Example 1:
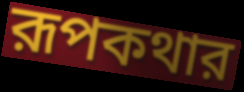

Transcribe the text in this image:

রূপকথার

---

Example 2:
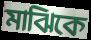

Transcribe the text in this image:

মাঝিকে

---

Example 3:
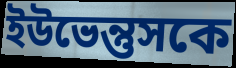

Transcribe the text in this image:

ইউভেন্তুসকে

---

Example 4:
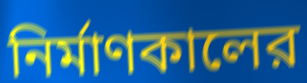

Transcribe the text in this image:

নির্মাণকালের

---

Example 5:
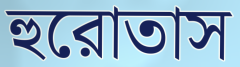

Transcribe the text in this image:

হুরোতাস